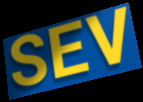
SEV